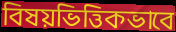
বিষয়ভিত্তিকভাবে